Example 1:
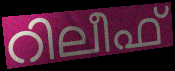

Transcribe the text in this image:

റിലീഫ്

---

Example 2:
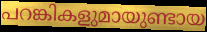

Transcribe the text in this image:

പറങ്കികളുമായുണ്ടായ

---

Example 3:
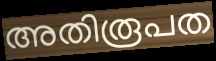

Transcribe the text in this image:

അതിരൂപത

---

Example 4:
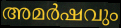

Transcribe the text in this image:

അമർഷവും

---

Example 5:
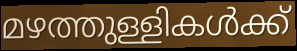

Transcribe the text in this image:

മഴത്തുള്ളികൾക്ക്